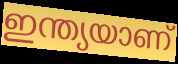
ഇന്ത്യയാണ്